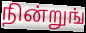
நின்றுங்